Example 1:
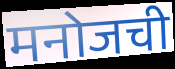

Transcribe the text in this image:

मनोजची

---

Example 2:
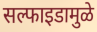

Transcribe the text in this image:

सल्फाइडामुळे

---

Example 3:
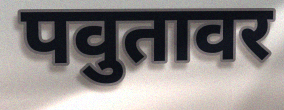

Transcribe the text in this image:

पवुतावर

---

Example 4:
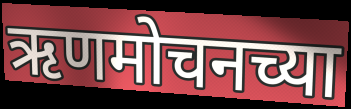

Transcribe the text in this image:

ऋणमोचनच्या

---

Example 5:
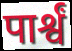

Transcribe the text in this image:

पार्श्वं